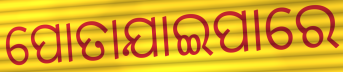
ପୋତାଯାଇପାରେ